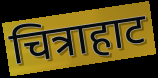
चित्राहाट